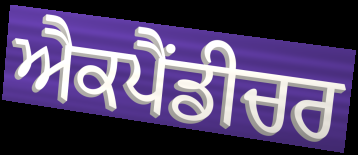
ਐਕਪੈਂਡੀਚਰ